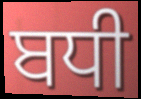
ਬਧੀ